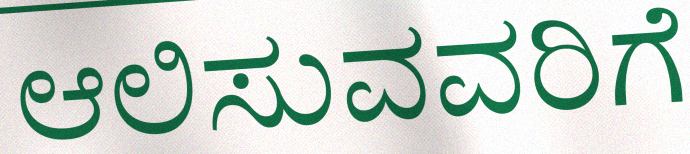
ಆಲಿಸುವವರಿಗೆ